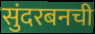
सुंदरबनची